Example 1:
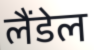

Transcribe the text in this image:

लैंडेल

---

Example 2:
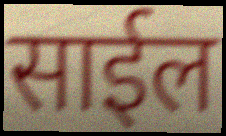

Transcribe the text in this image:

साईल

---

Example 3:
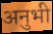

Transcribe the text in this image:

अनुभी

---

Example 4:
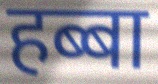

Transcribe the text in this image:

हब्‍बा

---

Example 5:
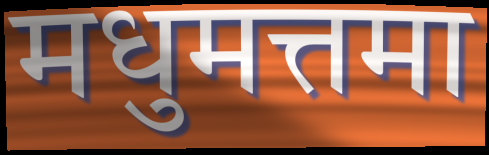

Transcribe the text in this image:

मधुमत्तमा